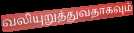
வலியுறுத்துவதாகவும்